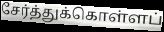
சேர்த்துக்கொள்ளப்